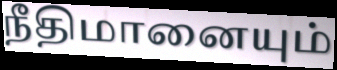
நீதிமானையும்